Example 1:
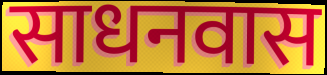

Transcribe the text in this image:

साधनवास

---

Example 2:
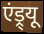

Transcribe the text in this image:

एंड्र्यू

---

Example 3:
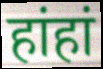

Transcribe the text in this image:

हांहां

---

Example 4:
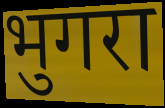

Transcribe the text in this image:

भुगरा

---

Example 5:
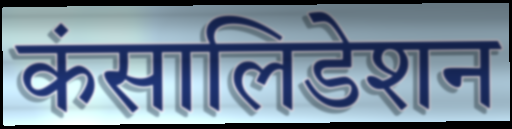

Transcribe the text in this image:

कंसालिडेशन